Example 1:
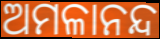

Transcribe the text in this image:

ଅମଳାନନ୍ଦ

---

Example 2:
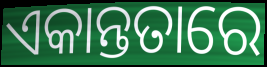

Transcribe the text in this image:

ଏକାନ୍ତତାରେ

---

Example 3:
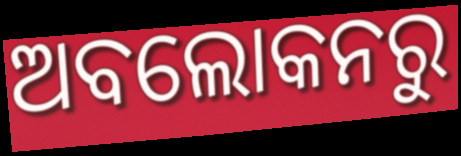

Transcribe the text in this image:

ଅବଲୋକନରୁ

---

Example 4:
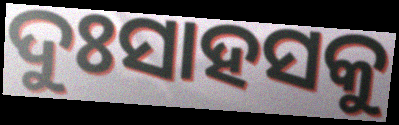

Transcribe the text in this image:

ଦୁଃସାହସକୁ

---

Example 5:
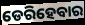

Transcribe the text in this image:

ଡେରିହେବାର